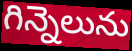
గిన్నెలును